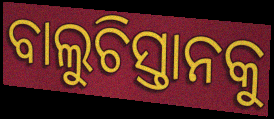
ବାଲୁଚିସ୍ତାନକୁ